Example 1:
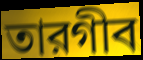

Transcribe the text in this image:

তারগীব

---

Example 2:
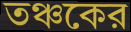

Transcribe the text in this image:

তঞ্চকের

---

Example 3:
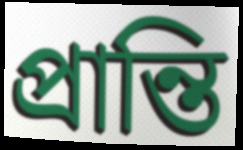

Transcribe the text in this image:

প্রান্তি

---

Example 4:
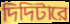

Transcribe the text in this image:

দিদিটারে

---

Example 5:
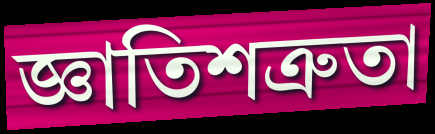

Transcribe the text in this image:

জ্ঞাতিশত্রুতা